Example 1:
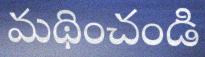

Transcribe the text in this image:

మథించండి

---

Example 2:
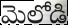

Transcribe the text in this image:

మెలోడి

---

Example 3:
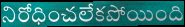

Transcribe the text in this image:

నిరోధించలేకపోయింది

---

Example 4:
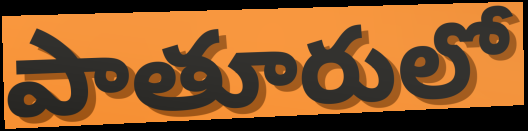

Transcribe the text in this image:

పాతూరులో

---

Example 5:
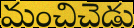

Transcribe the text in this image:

మంచిచెడు